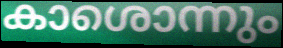
കാശൊന്നും